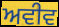
ਅਵੀਵ